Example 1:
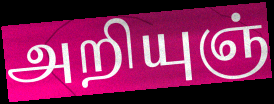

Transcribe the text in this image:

அறியுஞ்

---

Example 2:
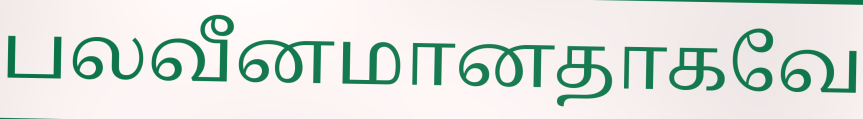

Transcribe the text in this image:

பலவீனமானதாகவே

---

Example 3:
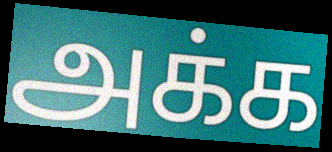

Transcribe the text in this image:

அக்க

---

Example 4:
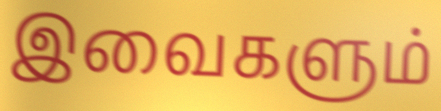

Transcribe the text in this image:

இவைகளும்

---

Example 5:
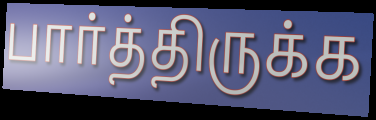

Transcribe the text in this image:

பார்த்திருக்க